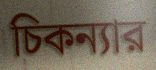
চিকন্যার